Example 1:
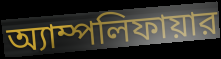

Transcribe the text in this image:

অ্যাম্পলিফায়ার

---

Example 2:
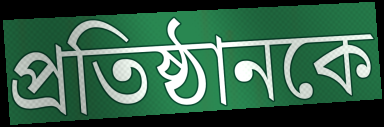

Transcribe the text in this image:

প্রতিষ্ঠানকে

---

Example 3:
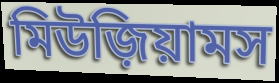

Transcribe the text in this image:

মিউজ়িয়ামস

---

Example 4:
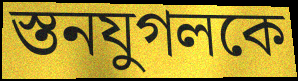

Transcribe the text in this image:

স্তনযুগলকে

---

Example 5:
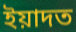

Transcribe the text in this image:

ইয়াদত